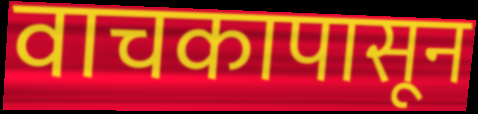
वाचकापासून